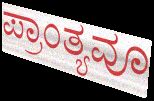
ಪ್ರಾಂತ್ಯವೂ